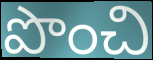
పొంచి